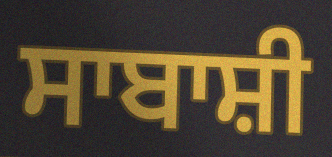
ਸਾਬਾਸ਼ੀ